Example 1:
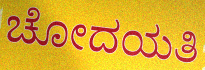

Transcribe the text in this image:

ಚೋದಯತಿ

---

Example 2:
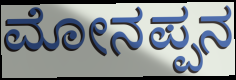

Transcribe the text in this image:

ಮೋನಪ್ಪನ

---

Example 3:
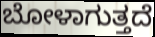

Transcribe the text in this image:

ಬೋಳಾಗುತ್ತದೆ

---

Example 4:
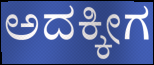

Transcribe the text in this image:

ಅದಕ್ಕೀಗ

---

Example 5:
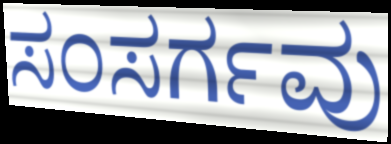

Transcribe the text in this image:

ಸಂಸರ್ಗವು